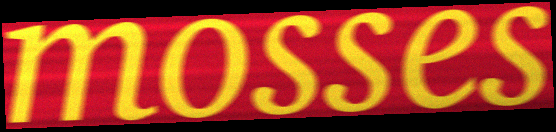
mosses